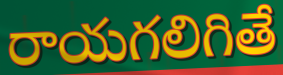
రాయగలిగితే